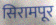
सिरामपूर